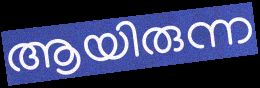
ആയിരുന്ന